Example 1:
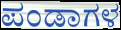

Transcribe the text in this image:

ಪಂಡಾಗಳ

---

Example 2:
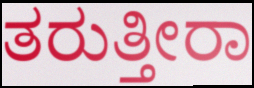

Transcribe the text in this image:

ತರುತ್ತೀರಾ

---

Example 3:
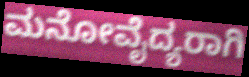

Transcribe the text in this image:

ಮನೋವೈದ್ಯರಾಗಿ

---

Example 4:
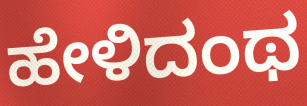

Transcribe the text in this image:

ಹೇಳಿದಂಥ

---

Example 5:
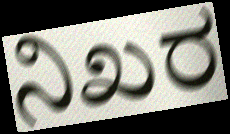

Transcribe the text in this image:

ನಿಖರ